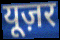
यूज़र